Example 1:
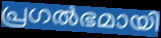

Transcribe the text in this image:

പ്രഗൽഭമായി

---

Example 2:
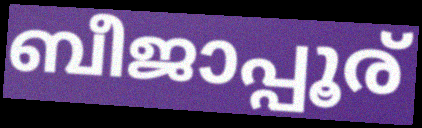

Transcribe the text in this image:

ബീജാപ്പൂര്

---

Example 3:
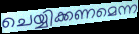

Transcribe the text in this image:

ചെയ്യിക്കണമെന്ന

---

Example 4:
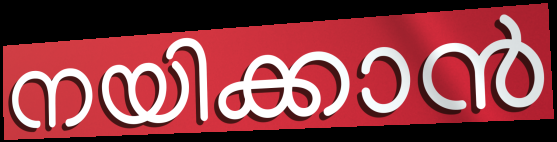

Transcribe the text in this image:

നയിക്കാൻ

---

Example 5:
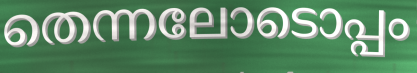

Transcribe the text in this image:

തെന്നലോടൊപ്പം